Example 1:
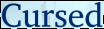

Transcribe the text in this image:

Cursed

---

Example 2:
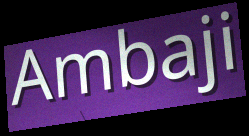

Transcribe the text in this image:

Ambaji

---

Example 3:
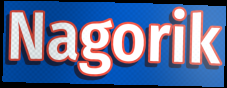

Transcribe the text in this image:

Nagorik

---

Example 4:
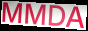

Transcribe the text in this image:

MMDA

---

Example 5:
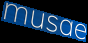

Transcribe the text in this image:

musae